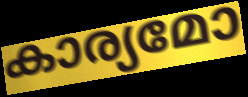
കാര്യമോ